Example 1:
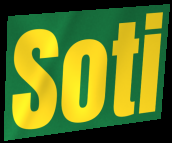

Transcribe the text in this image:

Soti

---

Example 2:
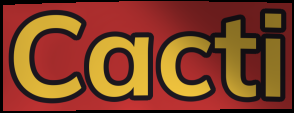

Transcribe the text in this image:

Cacti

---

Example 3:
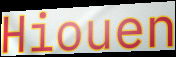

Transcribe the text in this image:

Hiouen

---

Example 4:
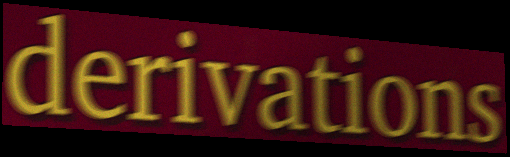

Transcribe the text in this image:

derivations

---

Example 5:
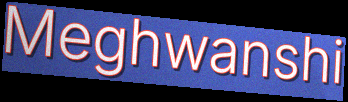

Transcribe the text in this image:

Meghwanshi